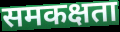
समकक्षता